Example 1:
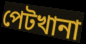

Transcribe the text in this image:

পেটখানা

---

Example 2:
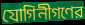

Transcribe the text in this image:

যোগিনীগণের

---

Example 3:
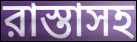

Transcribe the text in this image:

রাস্তাসহ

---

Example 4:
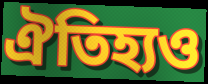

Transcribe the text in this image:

ঐতিহ্যও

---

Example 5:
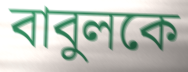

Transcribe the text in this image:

বাবুলকে